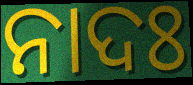
ନାଦଃ